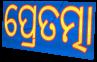
ପ୍ରେତତ୍ମା